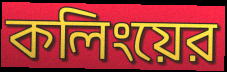
কলিংয়ের